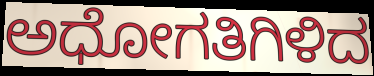
ಅಧೋಗತಿಗಿಳಿದ